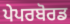
ਪੇਪਰਬੋਰਡ